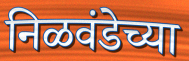
निळवंडेच्या